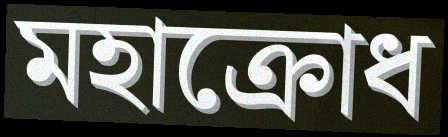
মহাক্রোধ